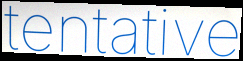
tentative